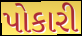
પોકારી